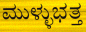
ಮುಳ್ಳುಭತ್ತ